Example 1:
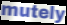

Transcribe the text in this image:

mutely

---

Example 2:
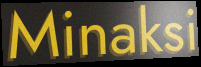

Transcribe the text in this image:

Minaksi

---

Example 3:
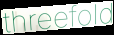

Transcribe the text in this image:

threefold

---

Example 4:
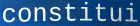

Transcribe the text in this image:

constitui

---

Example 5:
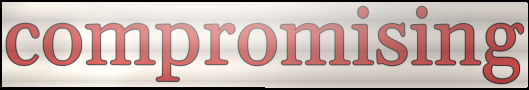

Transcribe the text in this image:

compromising